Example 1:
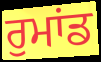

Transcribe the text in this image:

ਰੁਮਾਂਡ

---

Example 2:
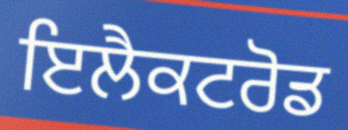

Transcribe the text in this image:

ਇਲੈਕਟਰੋਡ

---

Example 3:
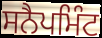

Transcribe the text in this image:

ਸਨੈਪਮਿੰਟ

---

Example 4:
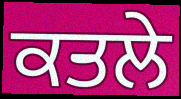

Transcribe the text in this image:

ਕਤਲੇ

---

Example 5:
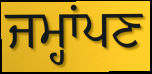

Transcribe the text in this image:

ਜਮ੍ਹਾਂਪਣ